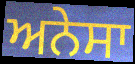
ਅਨੇਸਾ